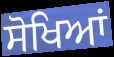
ਸੋਖਿਆਂ